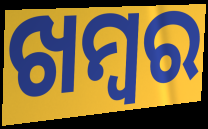
ଖମ୍ବର